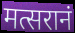
मत्सरानं